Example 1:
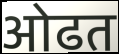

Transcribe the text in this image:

ओढत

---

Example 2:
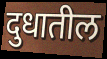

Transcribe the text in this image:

दुधातील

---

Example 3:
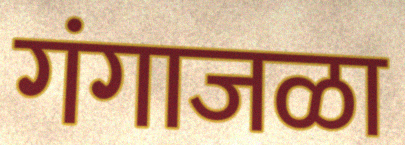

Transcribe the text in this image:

गंगाजळा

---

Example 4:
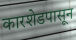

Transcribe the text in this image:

कारशेडपासून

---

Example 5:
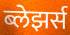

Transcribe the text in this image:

ब्लेझर्स